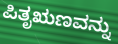
ಪಿತೃಋಣವನ್ನು